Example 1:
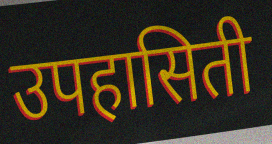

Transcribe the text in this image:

उपहासिती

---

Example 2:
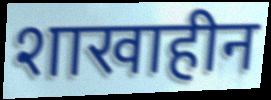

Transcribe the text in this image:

शाखाहीन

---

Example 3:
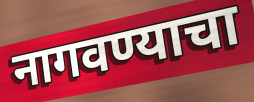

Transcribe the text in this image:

नागवण्याचा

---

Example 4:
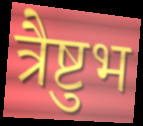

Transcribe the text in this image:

त्रैष्टुभ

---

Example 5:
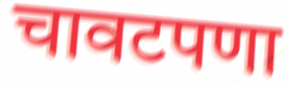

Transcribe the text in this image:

चावटपणा